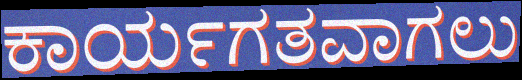
ಕಾರ್ಯಗತವಾಗಲು